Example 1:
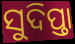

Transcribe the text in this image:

ସୁଦିପ୍ତା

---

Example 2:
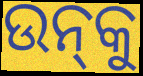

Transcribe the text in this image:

ଉନ୍‌କୁ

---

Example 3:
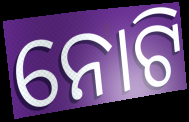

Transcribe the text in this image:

ନୋଟି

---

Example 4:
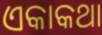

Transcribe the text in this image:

ଏକାକଥା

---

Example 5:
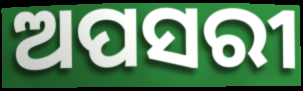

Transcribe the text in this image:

ଅପସରୀ